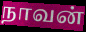
நாவன்